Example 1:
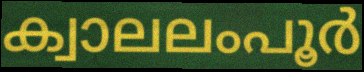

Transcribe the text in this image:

ക്വാലലംപൂർ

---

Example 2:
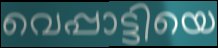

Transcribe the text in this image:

വെപ്പാട്ടിയെ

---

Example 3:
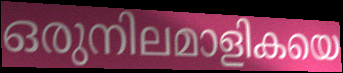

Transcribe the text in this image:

ഒരുനിലമാളികയെ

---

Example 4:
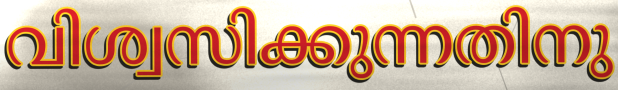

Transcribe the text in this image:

വിശ്വസിക്കുന്നതിനു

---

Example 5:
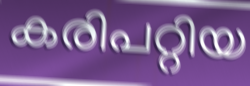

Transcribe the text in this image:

കരിപറ്റിയ